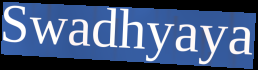
Swadhyaya